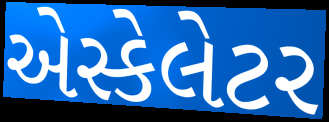
એસ્કેલેટર